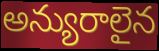
అన్యురాలైన